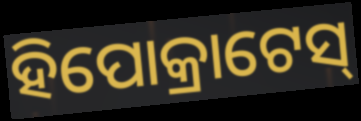
ହିପୋକ୍ରାଟେସ୍